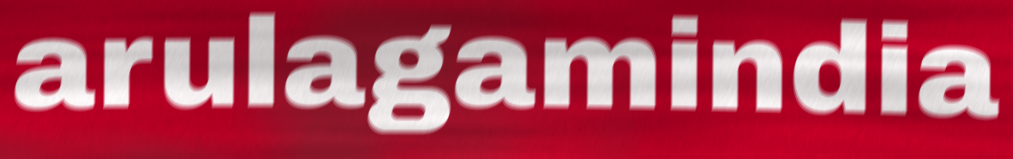
arulagamindia